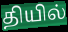
தியில்